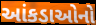
આંકડાઓનો